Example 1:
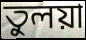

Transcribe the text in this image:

তুলয়া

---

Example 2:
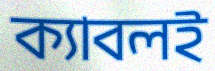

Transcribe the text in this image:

ক্যাবলই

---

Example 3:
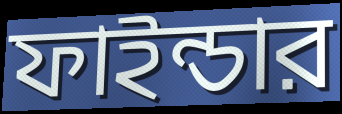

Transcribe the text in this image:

ফাইন্ডার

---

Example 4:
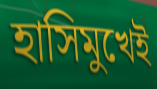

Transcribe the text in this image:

হাসিমুখেই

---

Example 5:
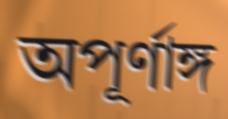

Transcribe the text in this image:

অপূর্ণাঙ্গ